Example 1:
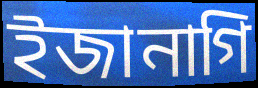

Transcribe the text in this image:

ইজানাগি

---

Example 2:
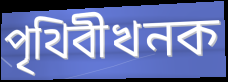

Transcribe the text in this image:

পৃথিবীখনক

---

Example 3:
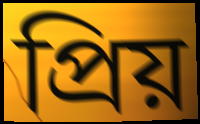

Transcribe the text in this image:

প্ৰিয়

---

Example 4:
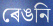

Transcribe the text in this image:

ৰেঙনি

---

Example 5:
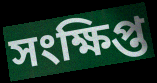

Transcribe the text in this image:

সংক্ষিপ্ত